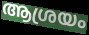
ആശ്രയം